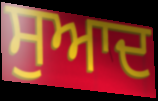
ਸੁਆਦ